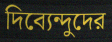
দিব্যেন্দুদের